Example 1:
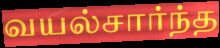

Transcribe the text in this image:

வயல்சார்ந்த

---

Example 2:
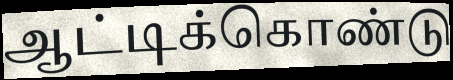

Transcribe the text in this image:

ஆட்டிக்கொண்டு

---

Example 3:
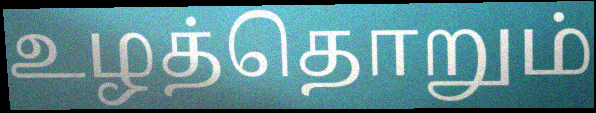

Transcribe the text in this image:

உழத்தொறும்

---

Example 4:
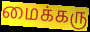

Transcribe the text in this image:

மைக்கரு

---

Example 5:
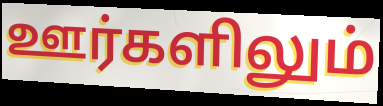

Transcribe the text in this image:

ஊர்களிலும்